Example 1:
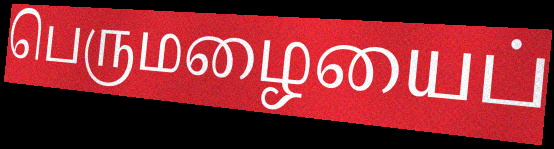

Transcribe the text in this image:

பெருமழையைப்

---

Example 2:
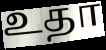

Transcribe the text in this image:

உதா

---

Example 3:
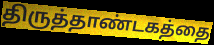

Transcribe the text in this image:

திருத்தாண்டகத்தை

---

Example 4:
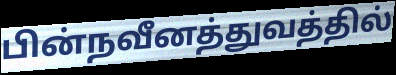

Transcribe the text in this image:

பின்நவீனத்துவத்தில்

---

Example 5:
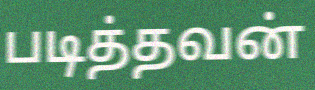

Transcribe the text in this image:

படித்தவன்